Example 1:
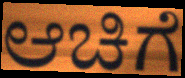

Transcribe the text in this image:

ಆಚಿಗೆ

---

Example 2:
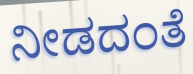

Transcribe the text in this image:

ನೀಡದಂತೆ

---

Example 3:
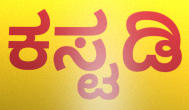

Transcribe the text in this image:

ಕಸ್ಟಡಿ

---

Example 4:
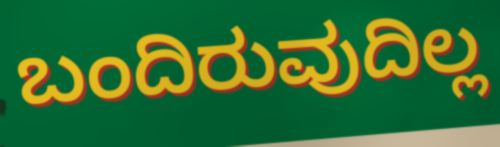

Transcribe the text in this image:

ಬಂದಿರುವುದಿಲ್ಲ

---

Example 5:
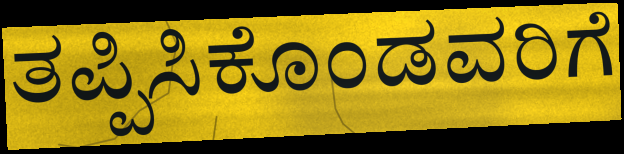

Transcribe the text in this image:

ತಪ್ಪಿಸಿಕೊಂಡವರಿಗೆ